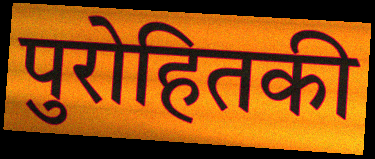
पुरोहितकी